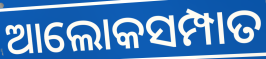
ଆଲୋକସମ୍ପାତ